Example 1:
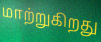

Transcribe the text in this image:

மாற்றுகிறது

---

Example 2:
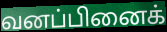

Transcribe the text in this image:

வனப்பினைக்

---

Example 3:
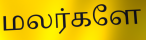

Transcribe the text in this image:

மலர்களே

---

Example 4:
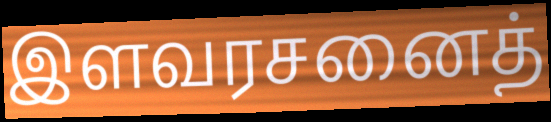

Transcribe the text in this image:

இளவரசனைத்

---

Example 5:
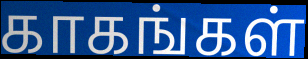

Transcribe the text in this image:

காகங்கள்